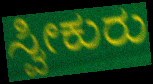
ಸ್ವೀಕುರು